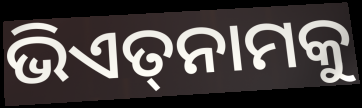
ଭିଏତ୍‌ନାମକୁ